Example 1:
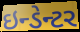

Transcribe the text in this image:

ઇન્ડેન્ટર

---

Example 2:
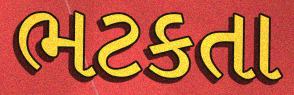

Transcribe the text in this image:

ભટકતા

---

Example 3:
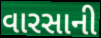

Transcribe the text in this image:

વારસાની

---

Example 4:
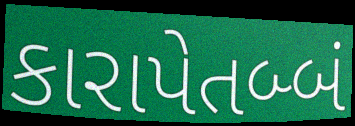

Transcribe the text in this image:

કારાપેતબ્બં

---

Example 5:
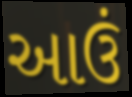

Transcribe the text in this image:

આઉં